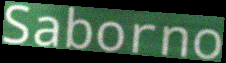
Saborno